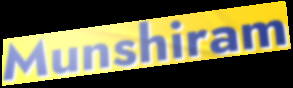
Munshiram